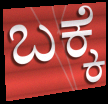
ಬಕ್ಕೆ